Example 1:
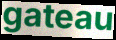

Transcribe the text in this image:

gateau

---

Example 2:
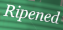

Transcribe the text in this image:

Ripened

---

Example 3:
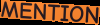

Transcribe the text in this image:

MENTION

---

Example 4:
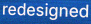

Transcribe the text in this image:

redesigned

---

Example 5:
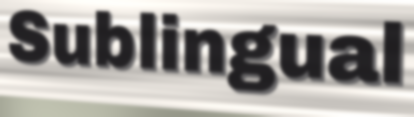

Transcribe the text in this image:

Sublingual